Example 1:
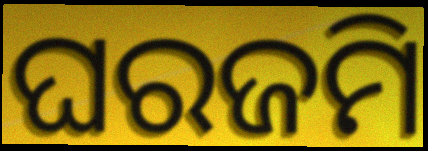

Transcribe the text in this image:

ଘରଜମି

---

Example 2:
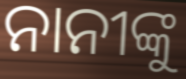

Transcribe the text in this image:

ନାନୀଙ୍କୁ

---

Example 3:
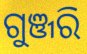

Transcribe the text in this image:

ଗୁଞ୍ଜରି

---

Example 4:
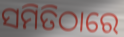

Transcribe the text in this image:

ସମିତିଠାରେ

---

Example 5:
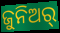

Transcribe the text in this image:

ଜୁନିଅର୍